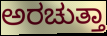
ಅರಚುತ್ತಾ